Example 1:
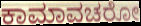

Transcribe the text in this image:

ಕಾಮಾವಚರೋ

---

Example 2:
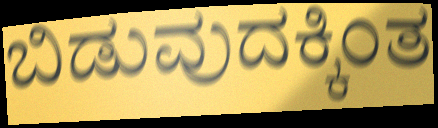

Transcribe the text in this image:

ಬಿಡುವುದಕ್ಕಿಂತ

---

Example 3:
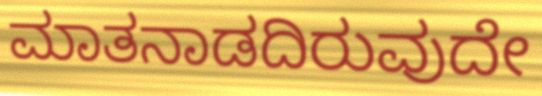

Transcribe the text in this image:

ಮಾತನಾಡದಿರುವುದೇ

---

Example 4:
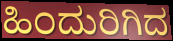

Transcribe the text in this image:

ಹಿಂದುರಿಗಿದ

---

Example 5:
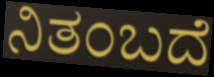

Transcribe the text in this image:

ನಿತಂಬದೆ